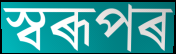
স্বৰূপৰ